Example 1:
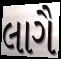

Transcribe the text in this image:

લાગૈ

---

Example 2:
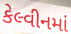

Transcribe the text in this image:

કેલ્વીનમાં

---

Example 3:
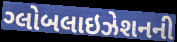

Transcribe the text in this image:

ગ્લોબલાઇઝેશનની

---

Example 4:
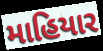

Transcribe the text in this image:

માહિયાર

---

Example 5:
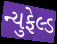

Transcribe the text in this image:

ન્યુફેલ્ડ